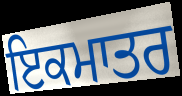
ਇਕਮਾਤਰ